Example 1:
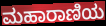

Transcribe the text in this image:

ಮಹಾರಾಣಿಯ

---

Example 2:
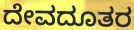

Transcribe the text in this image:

ದೇವದೂತರ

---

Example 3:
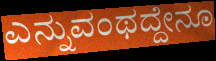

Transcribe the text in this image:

ಎನ್ನುವಂಥದ್ದೇನೂ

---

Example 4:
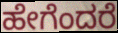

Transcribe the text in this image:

ಹೇಗೆಂದರೆ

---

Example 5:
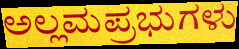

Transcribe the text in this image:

ಅಲ್ಲಮಪ್ರಭುಗಳು